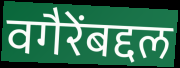
वगैरेंबद्दल